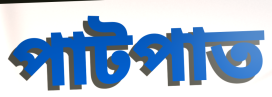
পাটপাত